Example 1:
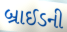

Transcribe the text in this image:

બ્રાઈડની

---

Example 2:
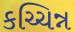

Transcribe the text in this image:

કચ્ચિન્ન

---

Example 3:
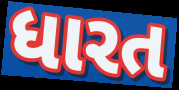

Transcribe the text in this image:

ધારત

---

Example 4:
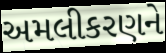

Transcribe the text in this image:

અમલીકરણને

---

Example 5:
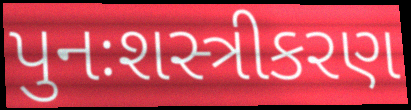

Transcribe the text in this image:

પુનઃશસ્ત્રીકરણ